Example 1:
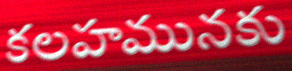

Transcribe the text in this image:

కలహమునకు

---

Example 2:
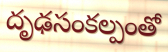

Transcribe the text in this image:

దృఢసంకల్పంతో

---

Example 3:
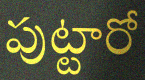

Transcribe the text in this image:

పుట్టారో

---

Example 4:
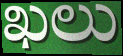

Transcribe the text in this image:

ఖలు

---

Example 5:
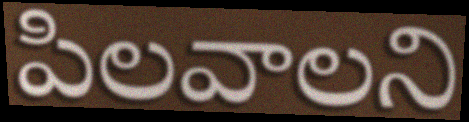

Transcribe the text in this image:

పిలవాలని